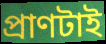
প্রাণটাই